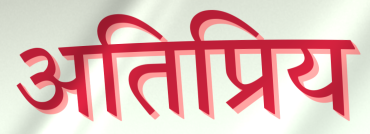
अतिप्रिय